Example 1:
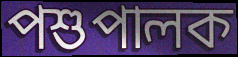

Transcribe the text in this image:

পশুপালক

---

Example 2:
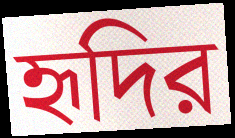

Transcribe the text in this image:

হৃদির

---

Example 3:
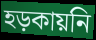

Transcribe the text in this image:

হড়কায়নি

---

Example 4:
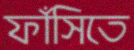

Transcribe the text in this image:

ফাঁসিতে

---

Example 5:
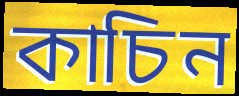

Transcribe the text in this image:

কাচিন